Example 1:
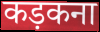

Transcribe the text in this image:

कड़कना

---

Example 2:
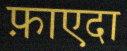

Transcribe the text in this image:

फ़ाएदा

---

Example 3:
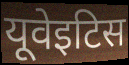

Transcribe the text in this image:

यूवेइटिस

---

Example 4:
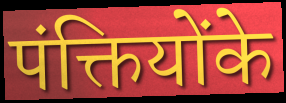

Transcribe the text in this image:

पंक्तियोंके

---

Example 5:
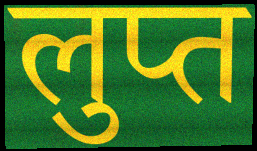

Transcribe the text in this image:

लुप्त